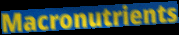
Macronutrients